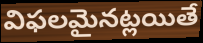
విఫలమైనట్లయితే